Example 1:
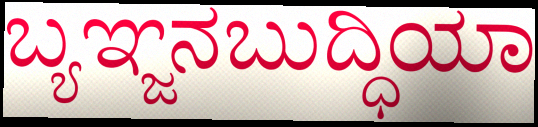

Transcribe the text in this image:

ಬ್ಯಞ್ಜನಬುದ್ಧಿಯಾ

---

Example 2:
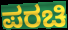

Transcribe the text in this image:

ಪರಚಿ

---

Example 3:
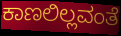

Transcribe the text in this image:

ಕಾಣಲಿಲ್ಲವಂತೆ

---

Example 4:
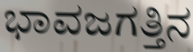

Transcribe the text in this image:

ಭಾವಜಗತ್ತಿನ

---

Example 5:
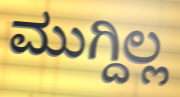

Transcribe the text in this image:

ಮುಗ್ದಿಲ್ಲ